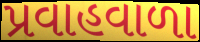
પ્રવાહવાળા